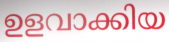
ഉളവാക്കിയ